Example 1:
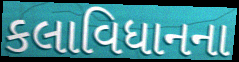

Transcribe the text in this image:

કલાવિધાનના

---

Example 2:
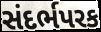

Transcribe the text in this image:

સંદર્ભપરક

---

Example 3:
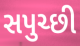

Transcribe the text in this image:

સપુચ્છી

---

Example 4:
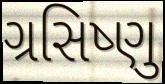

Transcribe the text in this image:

ગ્રસિષ્ણુ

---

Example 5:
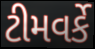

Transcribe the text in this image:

ટીમવર્કે